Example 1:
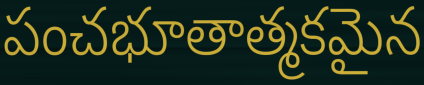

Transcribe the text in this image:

పంచభూతాత్మకమైన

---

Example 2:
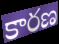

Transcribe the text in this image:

కారణ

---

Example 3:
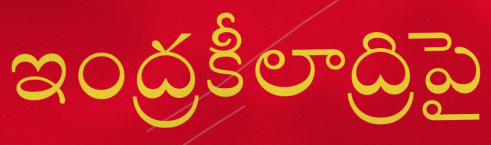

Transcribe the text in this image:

ఇంద్రకీలాద్రిపై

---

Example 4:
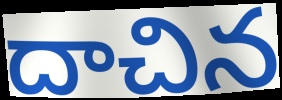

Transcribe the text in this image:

దాచిన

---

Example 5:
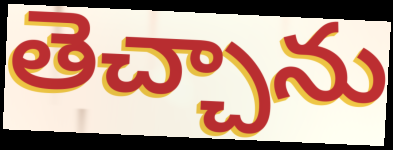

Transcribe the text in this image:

తెచ్చాను